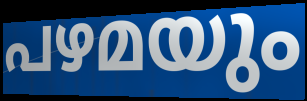
പഴമയും